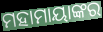
ମହାମାୟାଙ୍କର